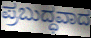
ಪ್ರಬುದ್ಧವಾದ